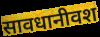
सावधानीवश